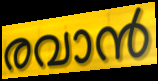
രവാൻ